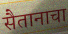
सैतानाचा